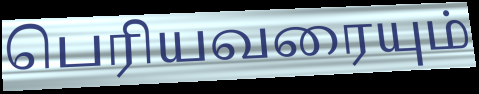
பெரியவரையும்